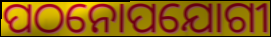
ପଠନୋପଯୋଗୀ